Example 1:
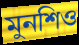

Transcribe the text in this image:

মুনশিও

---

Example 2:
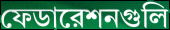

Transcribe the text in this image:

ফেডারেশনগুলি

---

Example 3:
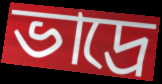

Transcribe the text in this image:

ভাদ্রে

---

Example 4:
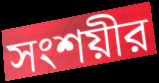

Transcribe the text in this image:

সংশয়ীর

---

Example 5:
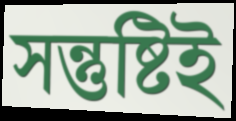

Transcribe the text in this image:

সন্তুষ্টিই